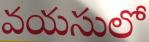
వయసులో